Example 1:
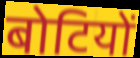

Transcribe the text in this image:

बोटियों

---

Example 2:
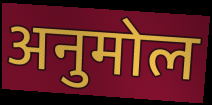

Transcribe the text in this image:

अनुमोल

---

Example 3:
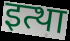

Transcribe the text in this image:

इत्था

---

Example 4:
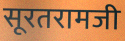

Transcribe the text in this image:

सूरतरामजी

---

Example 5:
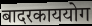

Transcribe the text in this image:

बादरकाययोग